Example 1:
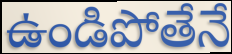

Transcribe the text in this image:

ఉండిపోతేనే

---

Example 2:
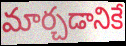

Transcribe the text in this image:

మార్చడానికే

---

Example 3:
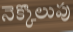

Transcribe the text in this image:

నెక్కొలుపు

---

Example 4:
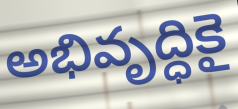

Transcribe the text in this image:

అభివృద్ధికై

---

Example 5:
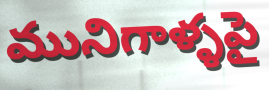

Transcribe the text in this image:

మునిగాళ్ళపై